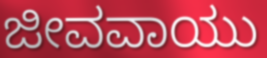
ಜೀವವಾಯು